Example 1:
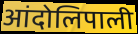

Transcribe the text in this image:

आंदोलिपाली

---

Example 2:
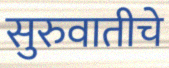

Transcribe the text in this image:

सुरुवातीचे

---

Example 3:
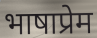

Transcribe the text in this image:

भाषाप्रेम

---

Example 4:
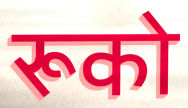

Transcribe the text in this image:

रूको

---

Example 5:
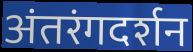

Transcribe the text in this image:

अंतरंगदर्शन